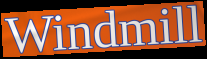
Windmill